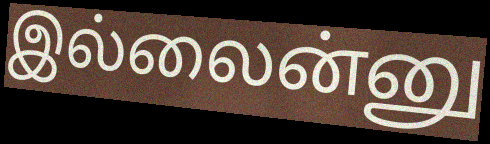
இல்லைன்னு